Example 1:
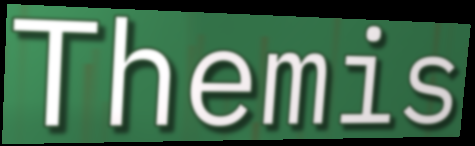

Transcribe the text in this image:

Themis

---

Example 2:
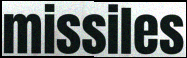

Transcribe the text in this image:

missiles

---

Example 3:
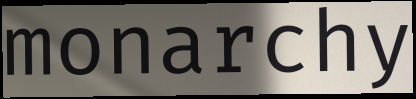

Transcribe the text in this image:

monarchy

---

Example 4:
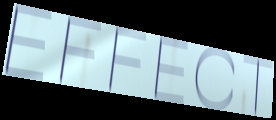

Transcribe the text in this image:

EFFECT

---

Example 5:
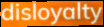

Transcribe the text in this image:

disloyalty